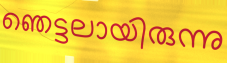
ഞെട്ടലായിരുന്നു